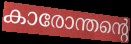
കാരോന്തന്റെ